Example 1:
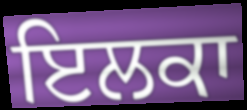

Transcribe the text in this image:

ਇਲਕਾ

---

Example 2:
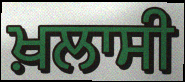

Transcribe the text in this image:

ਖ਼ਲਾਸੀ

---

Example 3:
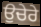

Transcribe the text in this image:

ਉਚੇਰੇ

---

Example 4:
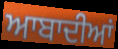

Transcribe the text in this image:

ਆਬਾਦੀਆਂ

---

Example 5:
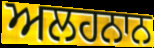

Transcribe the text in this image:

ਅਲਹਨਾਨ